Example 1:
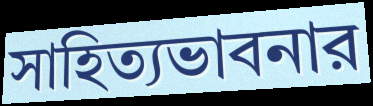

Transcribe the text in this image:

সাহিত্যভাবনার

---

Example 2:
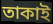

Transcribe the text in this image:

তাকাই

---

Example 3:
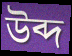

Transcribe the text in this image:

উব্দ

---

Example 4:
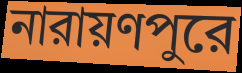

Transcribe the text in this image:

নারায়ণপুরে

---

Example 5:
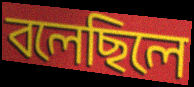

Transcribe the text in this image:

বলেছিলে